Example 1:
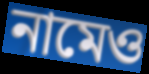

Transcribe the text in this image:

নামেও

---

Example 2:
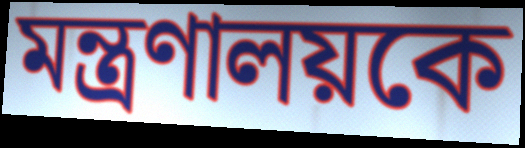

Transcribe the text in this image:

মন্ত্রণালয়কে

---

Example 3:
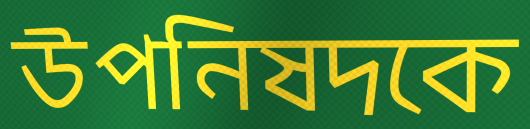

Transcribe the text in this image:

উপনিষদকে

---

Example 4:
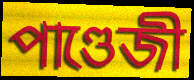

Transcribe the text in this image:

পাণ্ডেজী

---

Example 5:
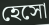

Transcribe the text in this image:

হেসো